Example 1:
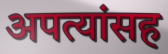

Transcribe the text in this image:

अपत्यांसह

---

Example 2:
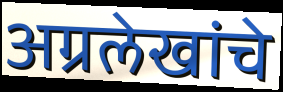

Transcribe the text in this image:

अग्रलेखांचे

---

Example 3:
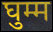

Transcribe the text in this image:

घुम्म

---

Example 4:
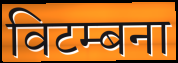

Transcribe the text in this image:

विटम्बना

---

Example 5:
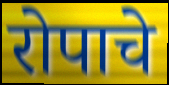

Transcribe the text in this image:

रोपाचे